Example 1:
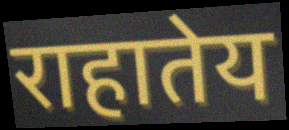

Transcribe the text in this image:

राहातेय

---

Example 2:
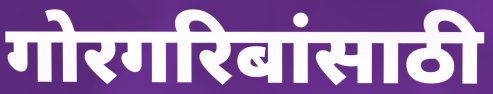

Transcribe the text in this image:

गोरगरिबांसाठी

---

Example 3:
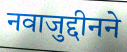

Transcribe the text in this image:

नवाजुद्दीनने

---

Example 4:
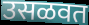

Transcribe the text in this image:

उसळवत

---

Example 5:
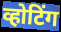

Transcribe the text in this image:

व्होटिंग